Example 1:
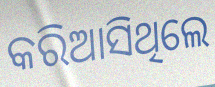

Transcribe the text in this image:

କରିଆସିଥିଲେ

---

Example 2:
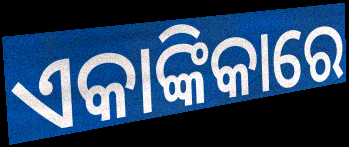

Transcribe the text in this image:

ଏକାଙ୍କିକାରେ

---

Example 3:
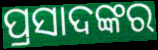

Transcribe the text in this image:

ପ୍ରସାଦଙ୍କର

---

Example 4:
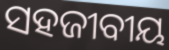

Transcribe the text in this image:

ସହଜୀବୀୟ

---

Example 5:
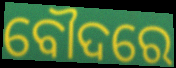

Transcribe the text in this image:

ବୌଦରେ